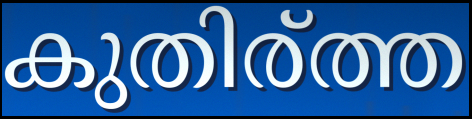
കുതിര്ത്ത